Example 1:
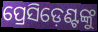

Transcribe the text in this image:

ପ୍ରେସିଡ଼େଣ୍ଟଙ୍କୁ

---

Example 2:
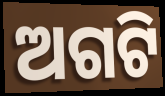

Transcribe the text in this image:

ଅଗଟି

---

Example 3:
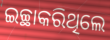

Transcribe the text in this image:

ଇଚ୍ଛାକରିଥିଲେ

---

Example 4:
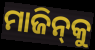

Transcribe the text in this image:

ମାଜିନ୍‌କୁ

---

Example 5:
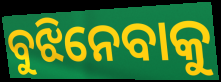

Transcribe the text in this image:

ବୁଝିନେବାକୁ